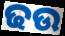
ଢଉ